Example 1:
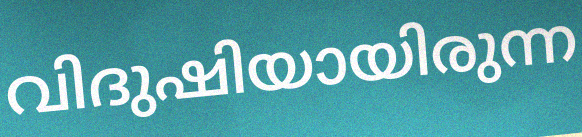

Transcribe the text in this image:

വിദുഷിയായിരുന്ന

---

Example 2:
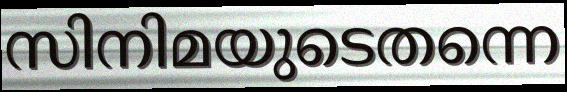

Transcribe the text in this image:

സിനിമയുടെതന്നെ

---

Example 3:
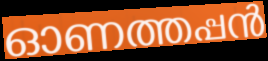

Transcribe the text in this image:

ഓണത്തപ്പൻ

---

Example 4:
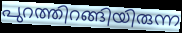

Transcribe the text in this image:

പുറത്തിറങ്ങിയിരുന്ന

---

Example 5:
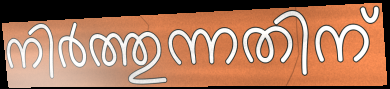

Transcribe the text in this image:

നിർത്തുന്നതിന്